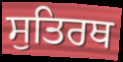
ਸੁਤਿਰਥ